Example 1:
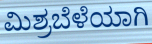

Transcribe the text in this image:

ಮಿಶ್ರಬೆಳೆಯಾಗಿ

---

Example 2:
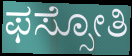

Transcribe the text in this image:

ಫಸ್ಸೋತಿ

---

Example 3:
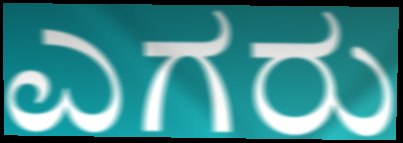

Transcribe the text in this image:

ಎಗರು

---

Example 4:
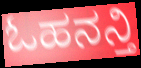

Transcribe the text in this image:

ಓಹನನ್ತಿ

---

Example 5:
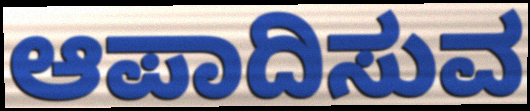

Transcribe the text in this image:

ಆಪಾದಿಸುವ